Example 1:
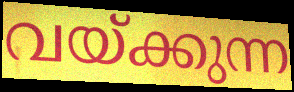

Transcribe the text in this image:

വയ്ക്കുന്ന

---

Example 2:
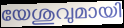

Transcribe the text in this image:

യേശുവുമായി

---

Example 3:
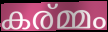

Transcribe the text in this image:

കര്മ്മം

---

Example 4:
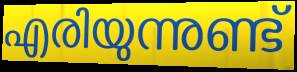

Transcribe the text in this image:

എരിയുന്നുണ്ട്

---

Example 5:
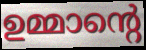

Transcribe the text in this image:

ഉമ്മാന്റെ